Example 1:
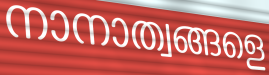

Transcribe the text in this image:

നാനാത്വങ്ങളെ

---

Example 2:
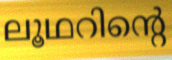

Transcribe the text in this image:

ലൂഥറിന്റെ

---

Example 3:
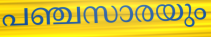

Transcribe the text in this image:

പഞ്ചസാരയും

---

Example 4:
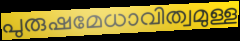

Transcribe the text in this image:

പുരുഷമേധാവിത്വമുള്ള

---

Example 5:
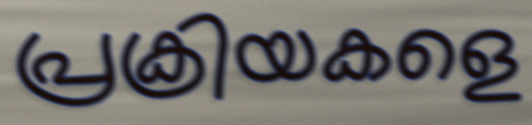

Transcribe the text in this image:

പ്രക്രിയകളെ